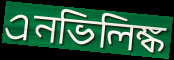
এনভিলিঙ্ক